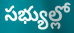
సభ్యుల్లో